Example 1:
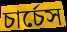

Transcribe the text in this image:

চার্চেস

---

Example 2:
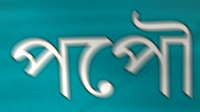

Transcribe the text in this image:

পপৌ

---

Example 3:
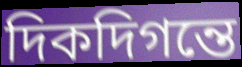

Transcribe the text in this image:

দিকদিগন্তে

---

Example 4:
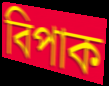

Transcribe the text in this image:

বিপাক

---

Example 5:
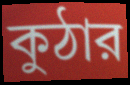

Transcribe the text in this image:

কুঠার